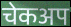
चेकअप